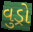
વુડ્રો